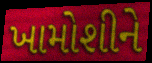
ખામોશીને